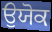
ਉਯੋਕ